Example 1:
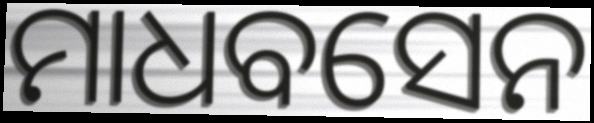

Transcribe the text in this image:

ମାଧବସେନ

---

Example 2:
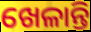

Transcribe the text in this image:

ଖେଳାନ୍ତି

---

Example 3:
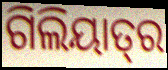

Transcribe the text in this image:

ଗିଲିୟାତ୍‍ର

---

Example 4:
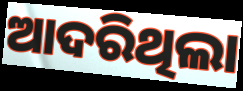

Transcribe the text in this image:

ଆଦରିଥିଲା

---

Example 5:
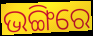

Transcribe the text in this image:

ଭଙ୍ଗିରେ